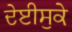
ਦੇਈਸੁਕੇ